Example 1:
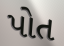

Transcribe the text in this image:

પોત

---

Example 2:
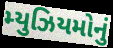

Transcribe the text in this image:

મ્યુઝિયમોનું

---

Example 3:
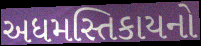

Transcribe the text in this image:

અધમસ્તિકાયનો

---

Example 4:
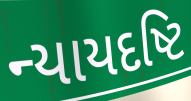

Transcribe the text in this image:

ન્યાયદષ્ટિ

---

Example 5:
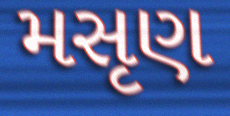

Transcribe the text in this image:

મસૃણ